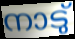
നാടു്